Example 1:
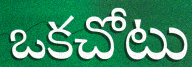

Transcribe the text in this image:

ఒకచోటు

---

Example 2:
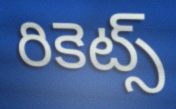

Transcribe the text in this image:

రికెట్స్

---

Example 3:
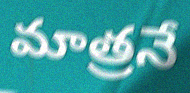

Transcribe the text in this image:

మాత్రనే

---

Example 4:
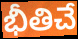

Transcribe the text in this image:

భీతిచే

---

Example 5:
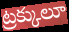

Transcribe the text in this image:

ట్రక్కులూ